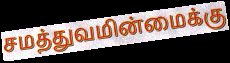
சமத்துவமின்மைக்கு